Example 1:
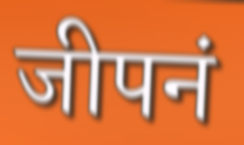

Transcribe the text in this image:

जीपनं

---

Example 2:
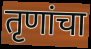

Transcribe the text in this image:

तृणांचा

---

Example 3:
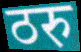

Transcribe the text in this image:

ठरु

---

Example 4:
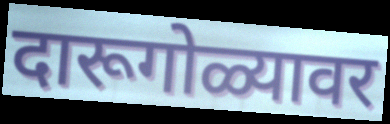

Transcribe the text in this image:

दारूगोळ्यावर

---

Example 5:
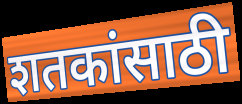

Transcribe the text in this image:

शतकांसाठी